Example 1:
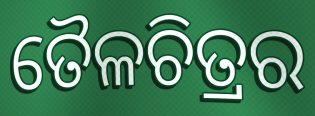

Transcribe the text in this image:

ତୈଳଚିତ୍ରର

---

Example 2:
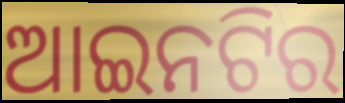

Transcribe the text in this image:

ଆଇନଟିର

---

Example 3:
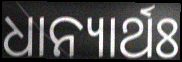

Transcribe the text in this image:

ଧାନ୍ୟାର୍ଥଃ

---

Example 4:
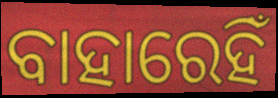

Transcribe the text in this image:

ବାହାରେହିଁ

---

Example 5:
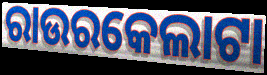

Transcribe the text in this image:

ରାଉରକେଲାଟା